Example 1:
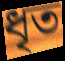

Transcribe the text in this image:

ধৃত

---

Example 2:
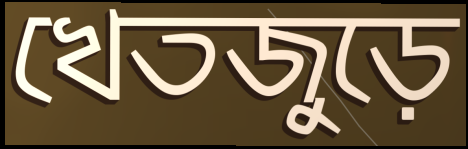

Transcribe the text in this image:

খেতজুড়ে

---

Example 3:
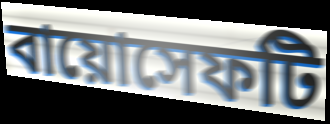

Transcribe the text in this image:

বায়োসেফটি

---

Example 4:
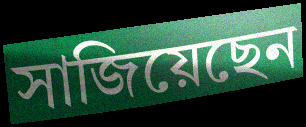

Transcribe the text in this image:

সাজিয়েছেন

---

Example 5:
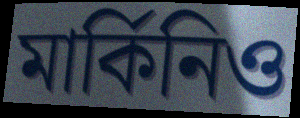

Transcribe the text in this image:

মার্কিনিও